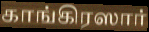
காங்கிரஸார்